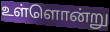
உள்ளொன்று